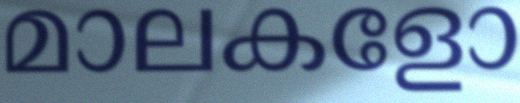
മാലകളോ